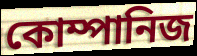
কোম্পানিজ